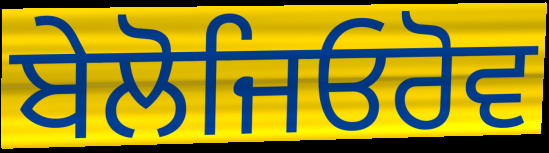
ਬੇਲੋਜਿਓਰੋਵ